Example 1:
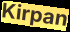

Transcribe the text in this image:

Kirpan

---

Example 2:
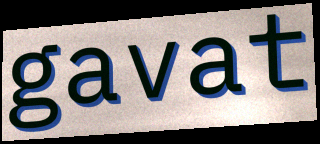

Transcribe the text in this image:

gavat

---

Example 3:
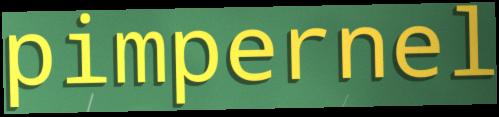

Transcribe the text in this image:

pimpernel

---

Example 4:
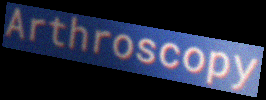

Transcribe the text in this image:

Arthroscopy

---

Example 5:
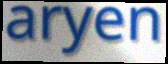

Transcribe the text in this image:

aryen